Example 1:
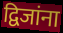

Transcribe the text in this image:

द्विजांना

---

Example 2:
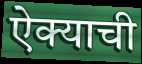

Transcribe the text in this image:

ऐक्याची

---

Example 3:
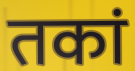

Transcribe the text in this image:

तकां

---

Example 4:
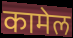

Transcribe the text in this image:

कामेल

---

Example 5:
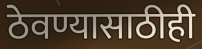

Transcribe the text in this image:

ठेवण्यासाठीही